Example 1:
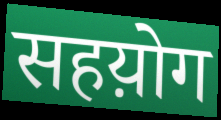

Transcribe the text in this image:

सहय़ोग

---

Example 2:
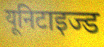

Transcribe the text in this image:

यूनिटाइज्ड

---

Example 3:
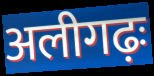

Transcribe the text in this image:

अलीगढ़ः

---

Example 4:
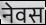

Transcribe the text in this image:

नेवस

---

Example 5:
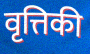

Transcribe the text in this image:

वृत्तिकी